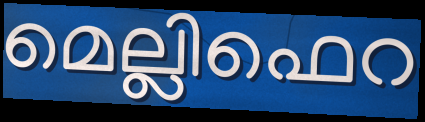
മെല്ലിഫെറ